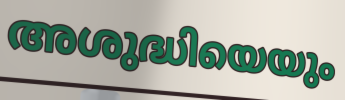
അശുദ്ധിയെയും